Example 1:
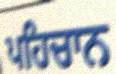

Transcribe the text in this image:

ਪਹਿਚਾਨ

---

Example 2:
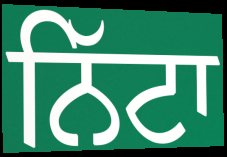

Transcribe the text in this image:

ਨਿੱਟਾ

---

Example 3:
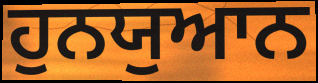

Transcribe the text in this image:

ਹੁਨਯੁਆਨ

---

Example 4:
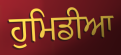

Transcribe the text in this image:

ਹੁਮਿਡੀਆ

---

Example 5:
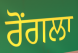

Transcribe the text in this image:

ਰੋਂਗਲਾ